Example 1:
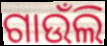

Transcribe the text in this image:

ଗାଉଁଲି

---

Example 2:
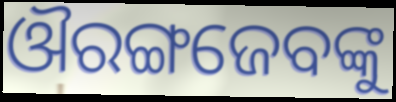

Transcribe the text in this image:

ଔରଙ୍ଗଜେବଙ୍କୁ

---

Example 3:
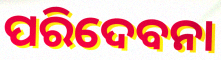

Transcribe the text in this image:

ପରିଦେବନା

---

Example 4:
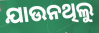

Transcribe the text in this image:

ଯାଉନଥିଲୁ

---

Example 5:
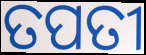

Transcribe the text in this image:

ତପତୀ